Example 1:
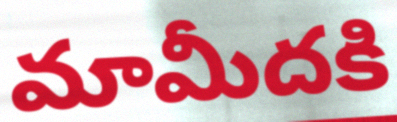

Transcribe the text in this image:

మామీదకి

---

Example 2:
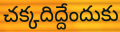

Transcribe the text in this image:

చక్కదిద్దేందుకు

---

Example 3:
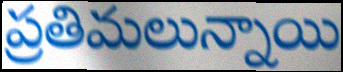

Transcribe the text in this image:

ప్రతిమలున్నాయి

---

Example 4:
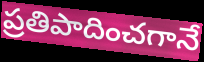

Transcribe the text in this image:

ప్రతిపాదించగానే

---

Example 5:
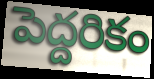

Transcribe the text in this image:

పెద్దరికం